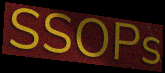
SSOPs